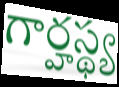
గార్హస్థ్య